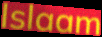
Islaam